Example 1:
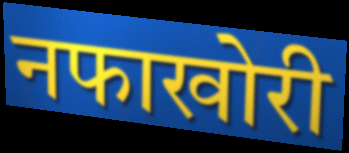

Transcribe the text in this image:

नफाखोरी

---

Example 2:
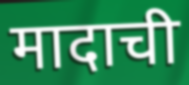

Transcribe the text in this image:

मादाची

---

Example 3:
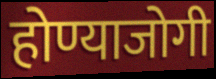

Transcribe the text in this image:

होण्याजोगी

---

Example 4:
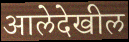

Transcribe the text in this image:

आलेदेखील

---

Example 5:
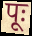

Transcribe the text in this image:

पूः